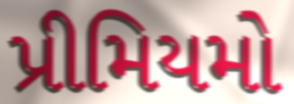
પ્રીમિયમો